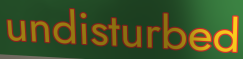
undisturbed